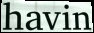
havin